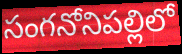
సంగనోనిపల్లిలో